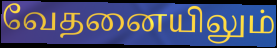
வேதனையிலும்